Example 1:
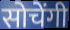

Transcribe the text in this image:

सोचेंगी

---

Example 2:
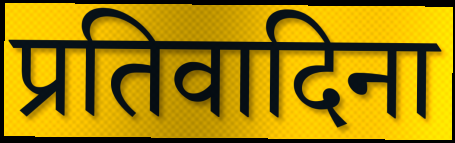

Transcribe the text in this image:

प्रतिवादिना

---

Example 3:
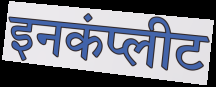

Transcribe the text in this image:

इनकंप्लीट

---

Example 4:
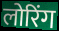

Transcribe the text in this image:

लोरिंग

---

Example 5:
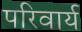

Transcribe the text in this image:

परिवार्य